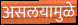
असलयामुळे